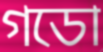
গডো